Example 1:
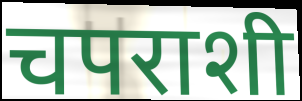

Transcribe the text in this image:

चपराशी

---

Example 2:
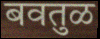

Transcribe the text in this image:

बवतुळ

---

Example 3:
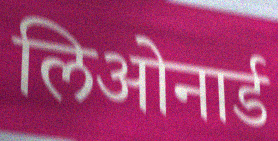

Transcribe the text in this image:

लिओनार्ड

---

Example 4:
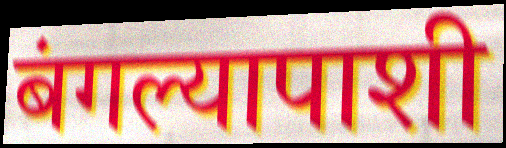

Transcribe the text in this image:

बंगल्यापाशी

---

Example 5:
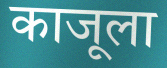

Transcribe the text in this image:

काजूला